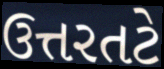
ઉત્તરતટે